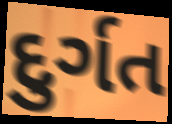
દુર્ગત